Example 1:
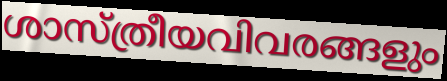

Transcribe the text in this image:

ശാസ്ത്രീയവിവരങ്ങളും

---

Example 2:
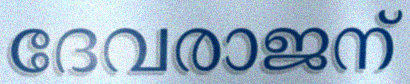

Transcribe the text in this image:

ദേവരാജന്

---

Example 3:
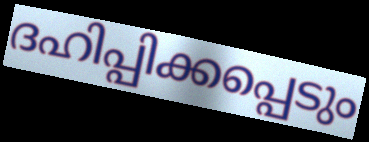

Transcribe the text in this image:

ദഹിപ്പിക്കപ്പെടും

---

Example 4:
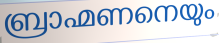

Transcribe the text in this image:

ബ്രാഹ്മണനെയും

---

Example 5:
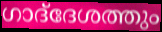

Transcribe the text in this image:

ഗാദ്‌ദേശത്തും